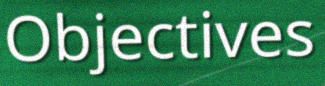
Objectives